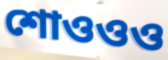
শোওওও